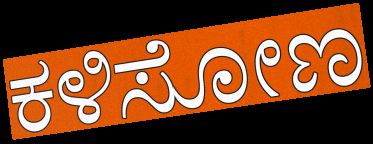
ಕಳಿಸೋಣ